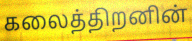
கலைத்திறனின்